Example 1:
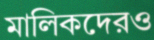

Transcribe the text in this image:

মালিকদেরও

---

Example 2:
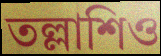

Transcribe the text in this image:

তল্লাশিও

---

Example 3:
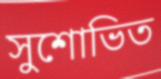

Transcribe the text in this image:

সুশোভিত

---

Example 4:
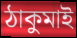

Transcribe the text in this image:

ঠাকুমাই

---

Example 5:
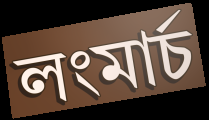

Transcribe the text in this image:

লংমার্চ